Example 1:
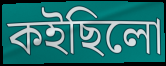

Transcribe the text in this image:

কইছিলো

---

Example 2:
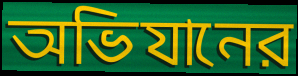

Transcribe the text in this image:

অভিযানের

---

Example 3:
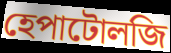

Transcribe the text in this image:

হেপাটোলজি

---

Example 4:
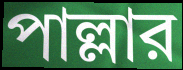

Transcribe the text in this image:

পাল্লার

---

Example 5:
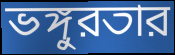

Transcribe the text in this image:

ভঙ্গুরতার